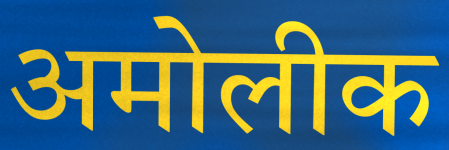
अमोलीक